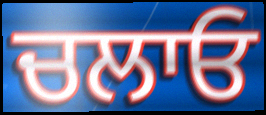
ਚਲਾਓ